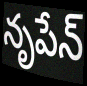
నృపేన్